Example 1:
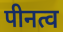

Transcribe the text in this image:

पीनत्व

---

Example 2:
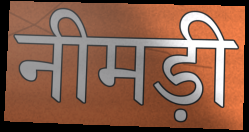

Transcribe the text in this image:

नीमड़ी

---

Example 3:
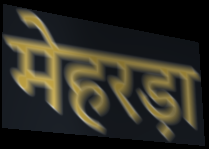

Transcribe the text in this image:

मेहरड़ा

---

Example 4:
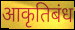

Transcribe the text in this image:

आकृतिबंध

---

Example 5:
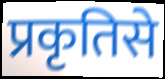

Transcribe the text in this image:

प्रकृतिसे